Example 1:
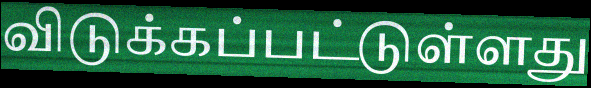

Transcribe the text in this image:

விடுக்கப்பட்டுள்ளது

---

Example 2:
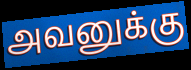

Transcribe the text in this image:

அவனுக்கு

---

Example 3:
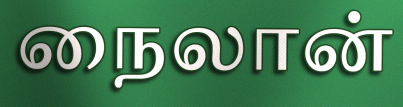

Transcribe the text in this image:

நைலான்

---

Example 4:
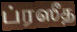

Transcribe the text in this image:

ப்ரஸீத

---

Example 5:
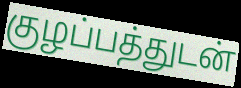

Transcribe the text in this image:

குழப்பத்துடன்